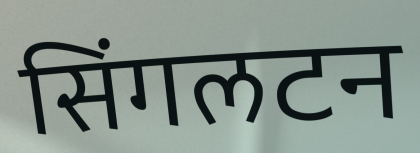
सिंगलटन